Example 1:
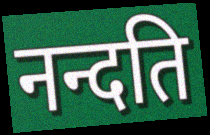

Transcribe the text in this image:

नन्दति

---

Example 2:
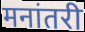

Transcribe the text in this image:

मनांतरी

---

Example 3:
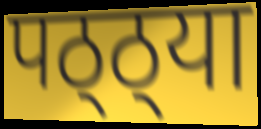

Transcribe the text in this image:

पठ्ठ्या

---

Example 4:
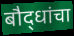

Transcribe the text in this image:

बौद्धांचा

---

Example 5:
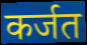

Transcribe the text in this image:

कर्जत